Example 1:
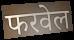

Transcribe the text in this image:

फरवेल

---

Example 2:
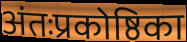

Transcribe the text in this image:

अंतःप्रकोष्ठिका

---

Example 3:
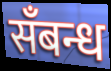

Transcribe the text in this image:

सँबन्ध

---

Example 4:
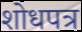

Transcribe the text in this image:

शोधपत्र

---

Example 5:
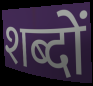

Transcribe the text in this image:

शब्‍दों